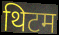
थिटम